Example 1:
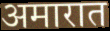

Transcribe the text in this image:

अमारात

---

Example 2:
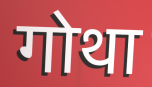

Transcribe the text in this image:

गोथा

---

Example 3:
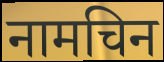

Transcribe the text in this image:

नामचिन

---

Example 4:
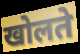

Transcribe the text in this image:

खोलते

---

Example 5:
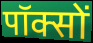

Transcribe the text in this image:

पॉक्सों